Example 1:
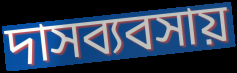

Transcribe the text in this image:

দাসব্যবসায়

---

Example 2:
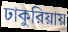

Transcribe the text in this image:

ঢাকুরিয়ায়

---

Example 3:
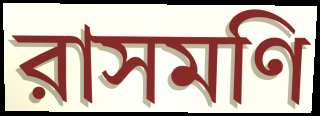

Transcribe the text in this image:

রাসমণি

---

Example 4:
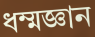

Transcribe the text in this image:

ধম্মজ্ঞান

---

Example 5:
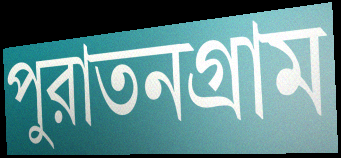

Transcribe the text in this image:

পুরাতনগ্রাম